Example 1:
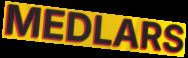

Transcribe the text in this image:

MEDLARS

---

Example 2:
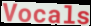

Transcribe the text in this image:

Vocals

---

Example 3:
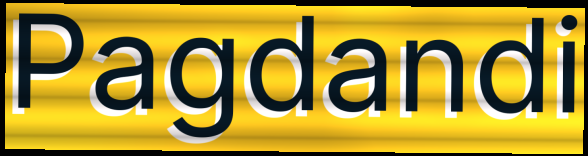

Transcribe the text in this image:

Pagdandi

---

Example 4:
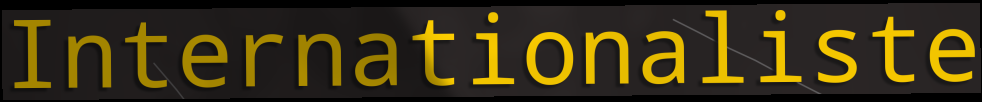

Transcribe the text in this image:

Internationaliste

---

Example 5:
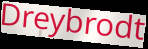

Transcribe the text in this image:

Dreybrodt